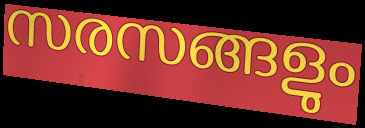
സരസങ്ങളും